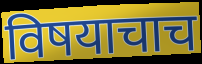
विषयाचाच